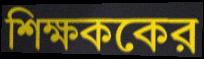
শিক্ষককের